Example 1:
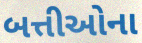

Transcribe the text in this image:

બત્તીઓના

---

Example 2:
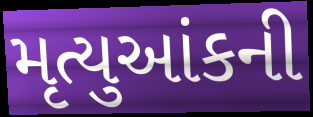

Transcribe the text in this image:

મૃત્યુઆંકની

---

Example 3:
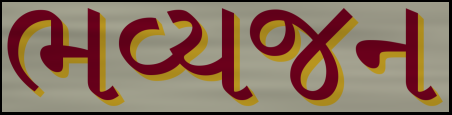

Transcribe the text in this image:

ભવ્યજન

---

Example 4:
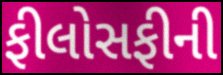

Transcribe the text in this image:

ફીલોસફીની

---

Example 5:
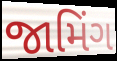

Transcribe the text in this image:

જામિંગ